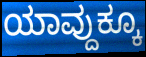
ಯಾವ್ದುಕ್ಕೂ